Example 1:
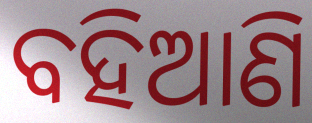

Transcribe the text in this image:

ବହିଆଣି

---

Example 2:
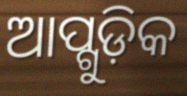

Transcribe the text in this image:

ଆପ୍ଗୁଡ଼ିକ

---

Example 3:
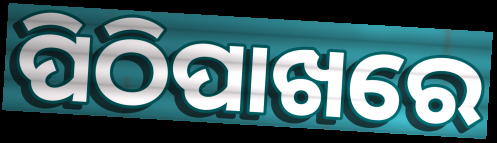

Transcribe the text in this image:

ପିଠିପାଖରେ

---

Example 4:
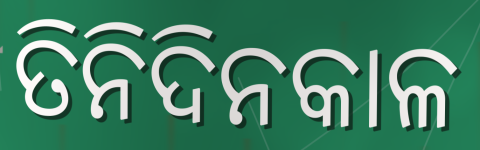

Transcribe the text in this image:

ତିନିଦିନକାଳ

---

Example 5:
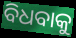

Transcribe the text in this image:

ବିଧବାକୁ